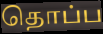
தொப்ப